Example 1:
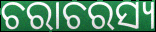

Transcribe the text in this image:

ଚରାଚରସ୍ୟ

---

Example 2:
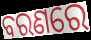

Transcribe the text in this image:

ବରଣରେ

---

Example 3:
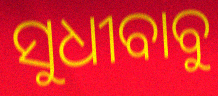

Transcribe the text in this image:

ସୁଧୀବାବୁ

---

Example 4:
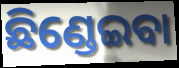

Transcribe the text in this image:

ଛିଣ୍ଡେଇବା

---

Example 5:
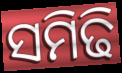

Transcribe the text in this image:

ସମିଢି